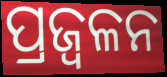
ପ୍ରଜ୍ବଳନ